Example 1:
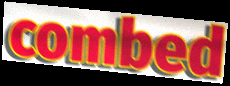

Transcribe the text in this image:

combed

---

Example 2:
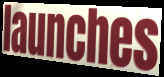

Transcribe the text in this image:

launches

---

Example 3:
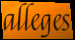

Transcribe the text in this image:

alleges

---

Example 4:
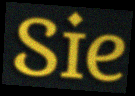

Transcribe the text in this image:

Sie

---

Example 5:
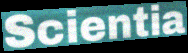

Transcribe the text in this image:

Scientia